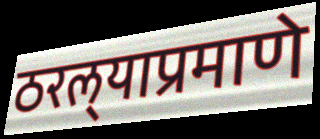
ठरल्याप्रमाणे